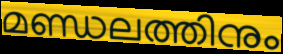
മണ്ഡലത്തിനും